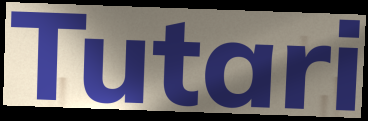
Tutari